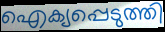
ഐക്യപ്പെടുത്തി